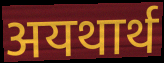
अयथार्थ